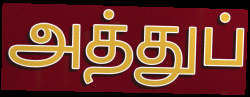
அத்துப்